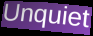
Unquiet